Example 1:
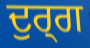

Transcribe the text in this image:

ਦੁਰ੍ਗ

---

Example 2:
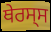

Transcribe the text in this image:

ਥੇਰਸ੍ਸ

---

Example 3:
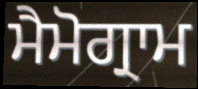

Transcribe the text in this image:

ਮੈਮੋਗ੍ਰਾਮ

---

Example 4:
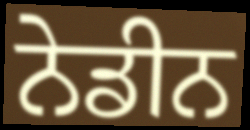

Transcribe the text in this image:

ਨੇਡੀਨ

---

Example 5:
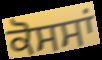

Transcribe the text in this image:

ਕੋਸਸਾਂ